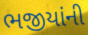
ભજીયાંની